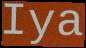
Iya